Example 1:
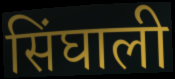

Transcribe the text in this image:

सिंघाली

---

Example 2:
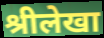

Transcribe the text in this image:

श्रीलेखा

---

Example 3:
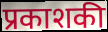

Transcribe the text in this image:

प्रकाशकी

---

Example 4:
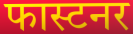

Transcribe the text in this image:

फास्टनर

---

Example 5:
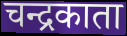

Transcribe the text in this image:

चन्द्रकाता